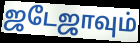
ஜடேஜாவும்